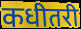
कधीतरी